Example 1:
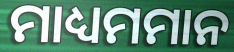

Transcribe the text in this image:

ମାଧ୍ୟମମାନ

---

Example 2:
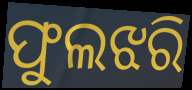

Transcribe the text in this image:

ଫୁଲଝରି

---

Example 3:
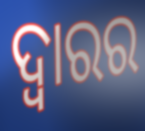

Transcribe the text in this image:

ଦ୍ୱାରର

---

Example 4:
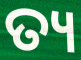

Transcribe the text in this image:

ତ୍ୟ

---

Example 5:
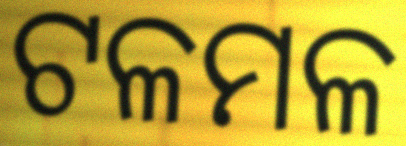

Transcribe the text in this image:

ଟଳମଳ